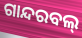
ଗାନ୍ଦରବଲ୍